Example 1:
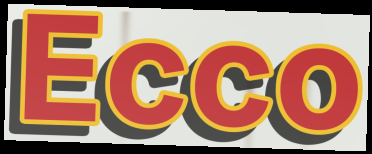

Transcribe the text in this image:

Ecco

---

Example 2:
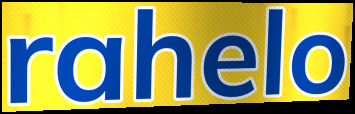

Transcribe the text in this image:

rahelo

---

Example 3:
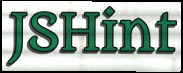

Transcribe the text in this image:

JSHint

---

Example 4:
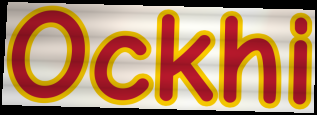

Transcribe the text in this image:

Ockhi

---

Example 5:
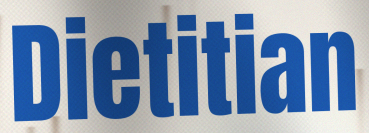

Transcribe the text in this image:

Dietitian